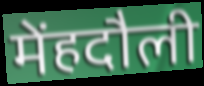
मेंहदौली